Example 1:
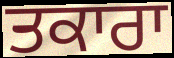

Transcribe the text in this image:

ਤਕਾਰਾ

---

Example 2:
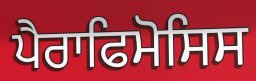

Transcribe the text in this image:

ਪੈਰਾਫਿਮੋਸਿਸ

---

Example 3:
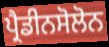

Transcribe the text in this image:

ਪ੍ਰੈਡੀਨਸੋਲੋਨ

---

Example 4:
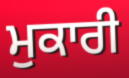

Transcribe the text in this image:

ਮੁਕਾਰੀ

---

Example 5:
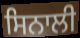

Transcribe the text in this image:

ਸਿਨਾਲੀ